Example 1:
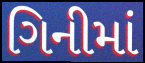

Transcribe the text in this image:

ગિનીમાં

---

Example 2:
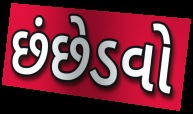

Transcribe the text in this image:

છંછેડવો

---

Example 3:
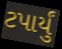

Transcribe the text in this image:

ટપાર્યું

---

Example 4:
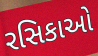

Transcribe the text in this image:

રસિકાઓ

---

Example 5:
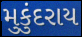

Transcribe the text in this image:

મુકુંદરાય